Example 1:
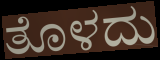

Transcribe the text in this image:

ತೊಳದು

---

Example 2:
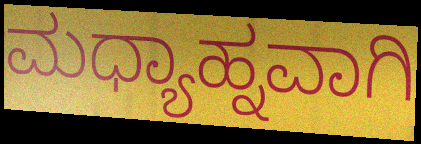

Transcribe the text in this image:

ಮಧ್ಯಾಹ್ನವಾಗಿ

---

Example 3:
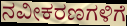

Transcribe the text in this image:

ನವೀಕರಣಗಳಿಗೆ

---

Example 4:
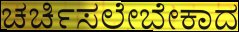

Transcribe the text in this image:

ಚರ್ಚಿಸಲೇಬೇಕಾದ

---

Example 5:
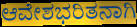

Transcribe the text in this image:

ಆವೇಶಭರಿತನಾಗಿ